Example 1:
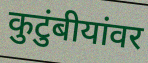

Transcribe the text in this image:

कुटुंबीयांवर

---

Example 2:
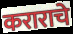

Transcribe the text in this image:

कराराचे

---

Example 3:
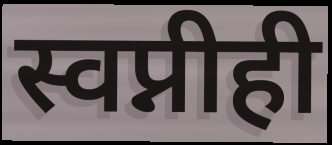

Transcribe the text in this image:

स्वप्नीही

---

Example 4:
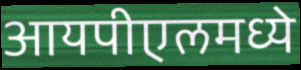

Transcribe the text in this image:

आयपीएलमध्ये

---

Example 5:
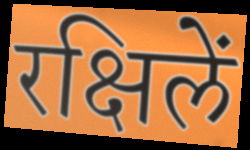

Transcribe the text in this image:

रक्षिलें